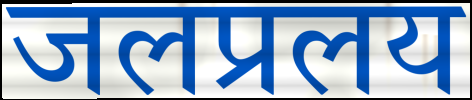
जलप्रलय